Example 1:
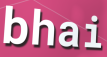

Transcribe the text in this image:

bhai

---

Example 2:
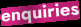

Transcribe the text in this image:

enquiries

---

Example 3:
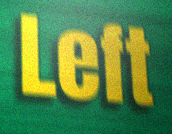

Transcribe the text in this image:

Left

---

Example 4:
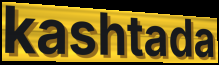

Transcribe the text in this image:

kashtada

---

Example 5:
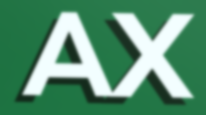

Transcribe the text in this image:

AX